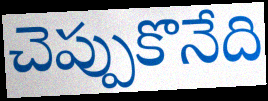
చెప్పుకొనేది